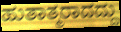
ಹುತಾತ್ಮರಾದದ್ದು